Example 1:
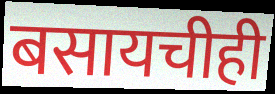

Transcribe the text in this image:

बसायचीही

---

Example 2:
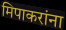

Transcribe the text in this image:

मिपाकरांना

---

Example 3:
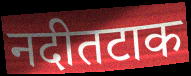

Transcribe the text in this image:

नदीतटाक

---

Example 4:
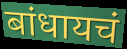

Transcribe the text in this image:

बांधायचं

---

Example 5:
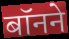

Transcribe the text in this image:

बॉनने